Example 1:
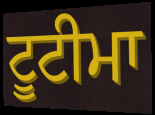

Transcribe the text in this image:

ਟੂਟੀਮਾ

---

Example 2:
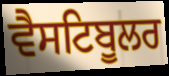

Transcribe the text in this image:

ਵੈਸਟਿਬੂਲਰ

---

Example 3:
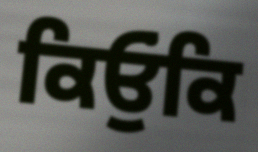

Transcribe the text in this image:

ਕਿਓੁਂਕਿ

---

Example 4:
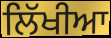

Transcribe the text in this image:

ਲਿੱਖੀਆ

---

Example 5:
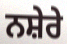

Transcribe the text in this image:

ਨਸ਼ੇਰੇ